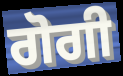
ਗੋਗੀ